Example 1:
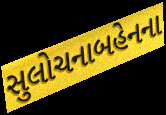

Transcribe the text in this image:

સુલોચનાબહેનના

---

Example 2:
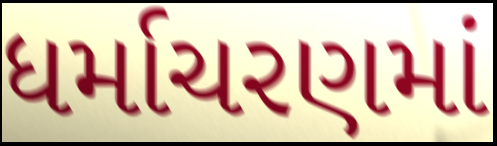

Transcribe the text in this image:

ધર્માચરણમાં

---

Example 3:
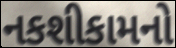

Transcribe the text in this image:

નકશીકામનો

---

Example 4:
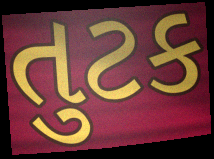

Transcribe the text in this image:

તુટક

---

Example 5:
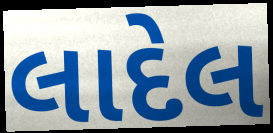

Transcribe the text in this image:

લાદેલ